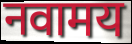
नवामय